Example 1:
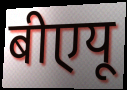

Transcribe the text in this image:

बीएयू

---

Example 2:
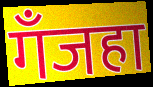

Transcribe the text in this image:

गँजहा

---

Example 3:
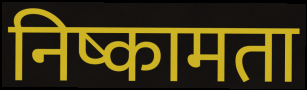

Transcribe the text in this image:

निष्कामता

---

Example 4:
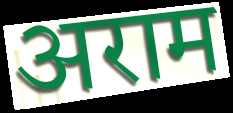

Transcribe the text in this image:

अराम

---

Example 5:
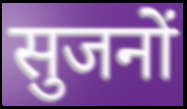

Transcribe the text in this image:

सुजनों